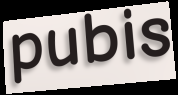
pubis